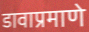
डावाप्रमाणे